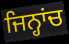
ਜਿਨ੍ਹਾਂਚ